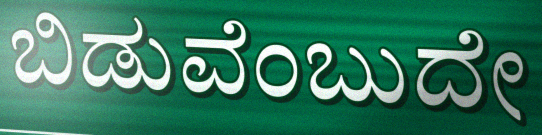
ಬಿಡುವೆಂಬುದೇ